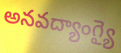
అనవద్యాంగ్యై